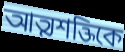
আত্মশক্তিকে